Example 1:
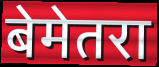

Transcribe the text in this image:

बेमेतरा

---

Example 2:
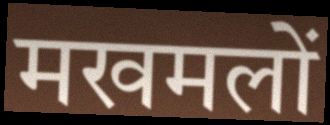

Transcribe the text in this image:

मखमलों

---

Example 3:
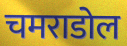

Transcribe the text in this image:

चमराडोल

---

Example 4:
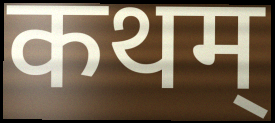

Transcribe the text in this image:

कथम्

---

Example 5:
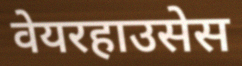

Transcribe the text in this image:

वेयरहाउसेस